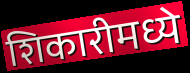
शिकारीमध्ये